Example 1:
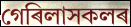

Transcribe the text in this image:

গেৰিলাসকলৰ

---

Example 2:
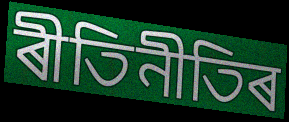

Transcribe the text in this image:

ৰীতিনীতিৰ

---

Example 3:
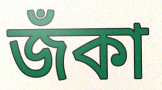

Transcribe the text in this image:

জঁকা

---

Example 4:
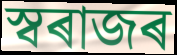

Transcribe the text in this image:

স্বৰাজৰ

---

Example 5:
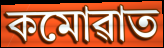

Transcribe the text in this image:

কমোৱাত